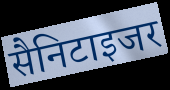
सैनिटाइजर